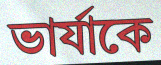
ভার্যাকে